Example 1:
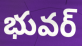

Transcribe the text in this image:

భువర్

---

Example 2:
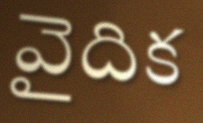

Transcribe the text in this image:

వైదిక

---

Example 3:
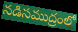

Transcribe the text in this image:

నడిసముద్రంలో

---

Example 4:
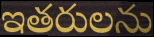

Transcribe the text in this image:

ఇతరులను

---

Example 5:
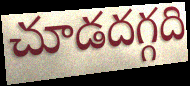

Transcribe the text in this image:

చూడదగ్గది